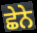
ਛੇਨੇ